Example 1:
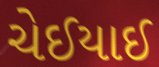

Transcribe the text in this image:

ચેઈયાઈ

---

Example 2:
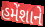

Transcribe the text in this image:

હમેંશાને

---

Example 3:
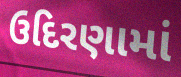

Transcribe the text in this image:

ઉદિરણામાં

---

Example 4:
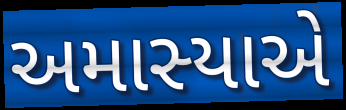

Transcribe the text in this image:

અમાસ્યાએ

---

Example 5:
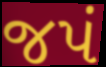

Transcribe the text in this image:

જપં